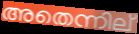
അതെന്നില്